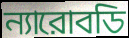
ন্যারোবডি